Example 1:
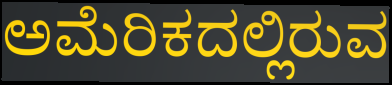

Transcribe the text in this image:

ಅಮೆರಿಕದಲ್ಲಿರುವ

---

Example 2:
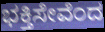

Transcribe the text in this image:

ಭಕ್ತಿಸೇವೆಂದ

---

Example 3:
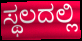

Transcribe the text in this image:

ಸ್ಥಲದಲ್ಲಿ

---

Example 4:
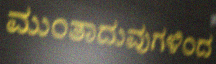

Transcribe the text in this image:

ಮುಂತಾದುವುಗಳಿಂದ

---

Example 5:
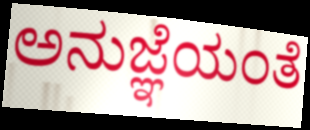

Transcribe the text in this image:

ಅನುಜ್ಞೆಯಂತೆ